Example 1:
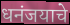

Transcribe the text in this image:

धनंजयाचे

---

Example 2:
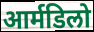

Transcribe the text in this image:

आर्मडिलो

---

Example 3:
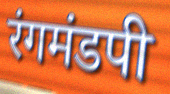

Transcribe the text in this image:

रंगमंडपी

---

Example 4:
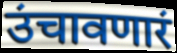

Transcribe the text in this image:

उंचावणारं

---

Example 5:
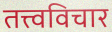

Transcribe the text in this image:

तत्त्वविचार